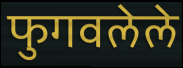
फुगवलेले